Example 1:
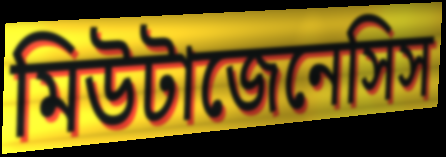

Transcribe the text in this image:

মিউটাজেনেসিস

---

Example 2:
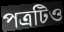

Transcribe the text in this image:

পত্রটিও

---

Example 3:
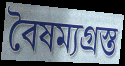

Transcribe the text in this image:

বৈষম্যগ্রস্ত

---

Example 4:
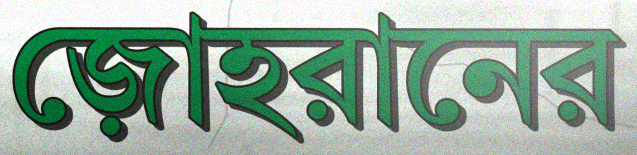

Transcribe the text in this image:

জ়োহরানের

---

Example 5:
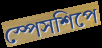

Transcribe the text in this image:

স্পেসশিপে